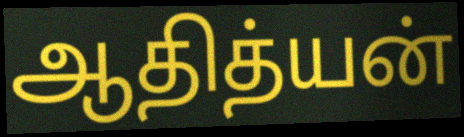
ஆதித்யன்